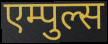
एम्पुल्स